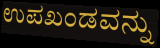
ಉಪಖಂಡವನ್ನು